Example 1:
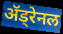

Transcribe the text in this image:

ॲड्रेनल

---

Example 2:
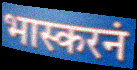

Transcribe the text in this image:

भास्करनं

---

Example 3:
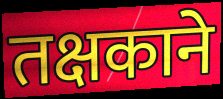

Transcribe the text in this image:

तक्षकाने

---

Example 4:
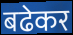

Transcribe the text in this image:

बढेकर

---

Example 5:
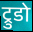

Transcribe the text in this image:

ट्रुडो